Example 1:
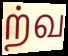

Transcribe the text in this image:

ற்வ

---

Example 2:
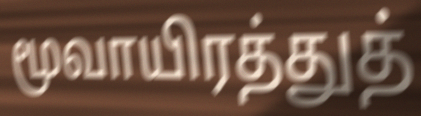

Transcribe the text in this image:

மூவாயிரத்துத்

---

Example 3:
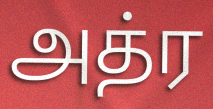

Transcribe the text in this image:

அத்ர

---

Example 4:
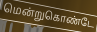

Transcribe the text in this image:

மென்றுகொண்டே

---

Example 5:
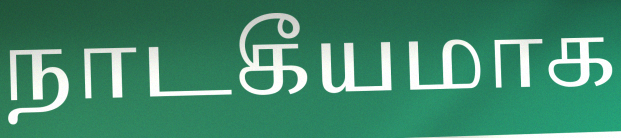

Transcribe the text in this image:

நாடகீயமாக